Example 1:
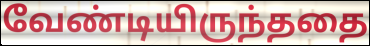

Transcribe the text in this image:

வேண்டியிருந்ததை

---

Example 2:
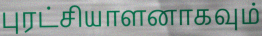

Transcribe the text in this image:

புரட்சியாளனாகவும்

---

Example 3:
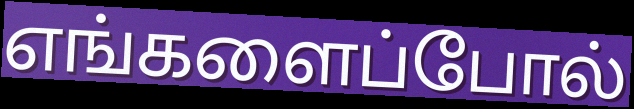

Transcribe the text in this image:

எங்களைப்போல்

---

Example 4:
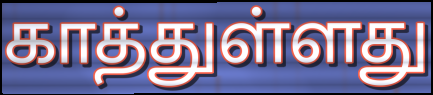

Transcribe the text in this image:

காத்துள்ளது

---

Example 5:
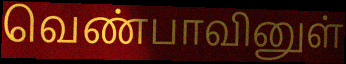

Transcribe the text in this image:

வெண்பாவினுள்